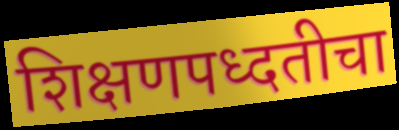
शिक्षणपध्दतीचा